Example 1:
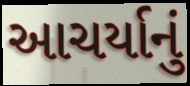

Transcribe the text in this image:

આચર્યાનું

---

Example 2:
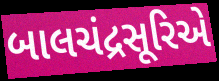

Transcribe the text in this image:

બાલચંદ્રસૂરિએ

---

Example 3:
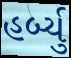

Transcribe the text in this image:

હર્બ્યુ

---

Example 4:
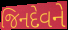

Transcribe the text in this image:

જિનદેવને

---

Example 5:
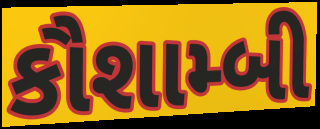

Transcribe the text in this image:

કૌશામ્બી